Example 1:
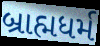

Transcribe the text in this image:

બ્રાહ્મધર્મ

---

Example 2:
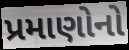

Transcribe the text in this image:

પ્રમાણોનો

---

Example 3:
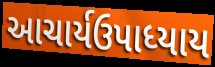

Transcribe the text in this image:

આચાર્યઉપાધ્યાય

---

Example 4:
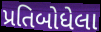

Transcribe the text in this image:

પ્રતિબોધેલા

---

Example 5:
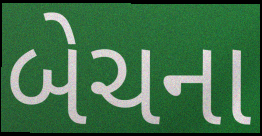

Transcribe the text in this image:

બેચના